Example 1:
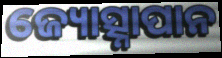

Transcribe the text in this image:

ଜ୍ୟୋତ୍ସ୍ନାପାନ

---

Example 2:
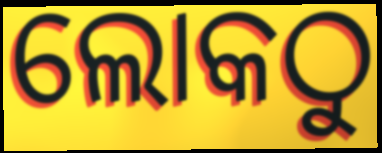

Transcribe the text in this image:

ଲୋକଠୁ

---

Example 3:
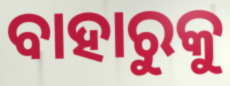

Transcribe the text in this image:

ବାହାରୁକୁ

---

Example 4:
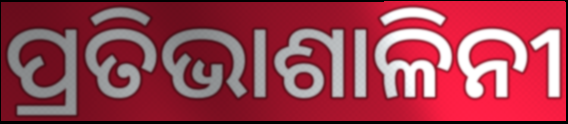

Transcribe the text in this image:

ପ୍ରତିଭାଶାଳିନୀ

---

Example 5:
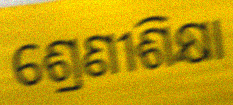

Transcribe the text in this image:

ଶ୍ରେଣୀଶିକ୍ଷା